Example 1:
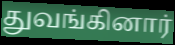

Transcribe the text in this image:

துவங்கினார்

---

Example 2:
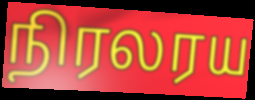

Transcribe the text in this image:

நிரலரய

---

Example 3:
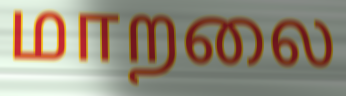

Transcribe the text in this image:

மாறலை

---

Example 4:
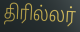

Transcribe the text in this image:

திரில்லர்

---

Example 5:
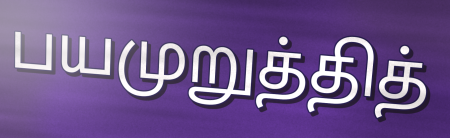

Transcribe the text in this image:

பயமுறுத்தித்